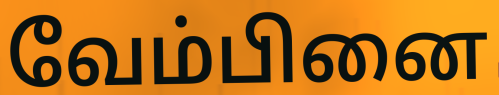
வேம்பினை